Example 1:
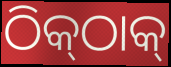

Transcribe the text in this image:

ଠିକ୍‌ଠାକ୍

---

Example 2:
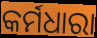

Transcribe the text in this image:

କର୍ମଧାରା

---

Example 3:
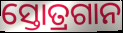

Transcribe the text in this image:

ସ୍ତୋତ୍ରଗାନ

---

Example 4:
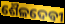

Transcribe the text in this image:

ଶୈଳଦେବୀ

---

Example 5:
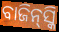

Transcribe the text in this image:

ବାଜିନ୍‌ସ୍କି